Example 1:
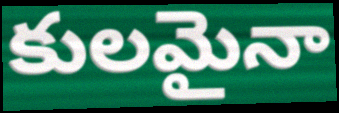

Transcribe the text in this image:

కులమైనా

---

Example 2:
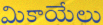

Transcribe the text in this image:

మికాయేలు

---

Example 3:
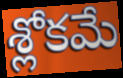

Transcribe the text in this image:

శ్లోకమే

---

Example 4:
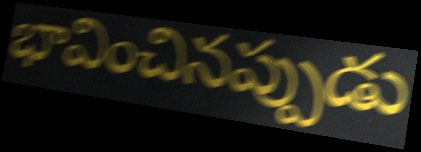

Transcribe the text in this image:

భావించినప్పుడు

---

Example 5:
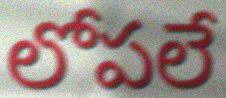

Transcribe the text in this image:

లోపలే